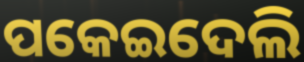
ପକେଇଦେଲି